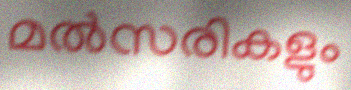
മൽസരികളും